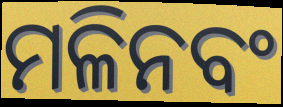
ମଳିନବଂ